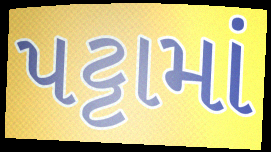
પટ્ટામાં